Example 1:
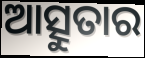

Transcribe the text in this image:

ଆତ୍ସୁତାର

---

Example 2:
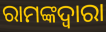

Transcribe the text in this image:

ରାମଙ୍କଦ୍ଵାରା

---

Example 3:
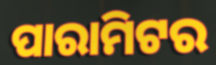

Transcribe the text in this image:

ପାରାମିଟର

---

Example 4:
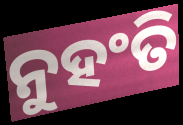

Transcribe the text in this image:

ନୁହଂତି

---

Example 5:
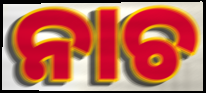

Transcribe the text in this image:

ନାଚ